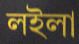
লইলা